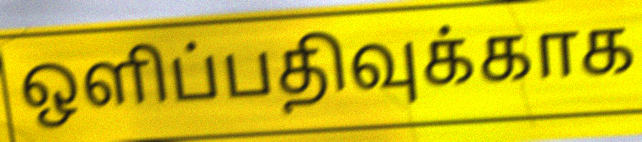
ஒளிப்பதிவுக்காக